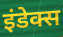
इंडेक्स